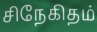
சிநேகிதம்